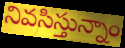
నివసిస్తున్నాం